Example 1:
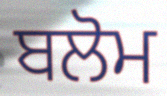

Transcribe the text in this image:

ਬਲੋਮ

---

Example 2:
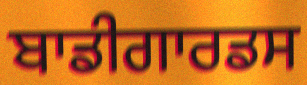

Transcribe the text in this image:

ਬਾਡੀਗਾਰਡਸ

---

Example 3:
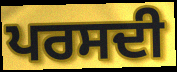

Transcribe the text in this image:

ਪਰਸਦੀ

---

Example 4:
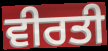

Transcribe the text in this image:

ਵੀਰਤੀ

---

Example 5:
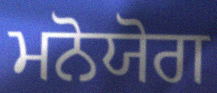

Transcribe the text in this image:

ਮਨੋਯੋਗ